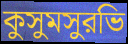
কুসুমসুরভি